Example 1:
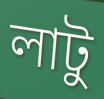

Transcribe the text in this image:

লাটু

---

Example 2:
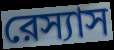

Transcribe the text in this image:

রেস্যাস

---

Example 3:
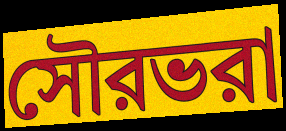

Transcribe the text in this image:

সৌরভরা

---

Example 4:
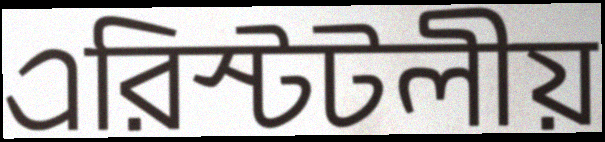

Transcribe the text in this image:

এরিস্টটলীয়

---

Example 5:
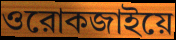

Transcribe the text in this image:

ওরোকজাইয়ে